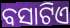
ବସାଟିଏ